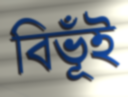
বিভূঁই